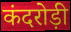
कंदरोड़ी